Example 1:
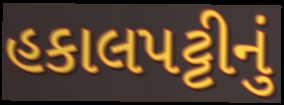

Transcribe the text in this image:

હકાલપટ્ટીનું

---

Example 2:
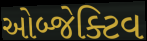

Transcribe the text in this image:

ઓબ્જેક્ટિવ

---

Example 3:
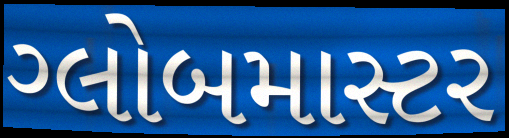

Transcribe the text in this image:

ગ્લોબમાસ્ટર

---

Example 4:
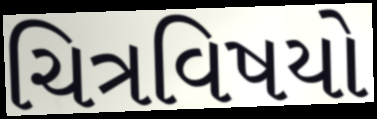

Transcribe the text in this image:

ચિત્રવિષયો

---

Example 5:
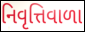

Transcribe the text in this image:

નિવૃત્તિવાળા